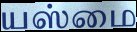
யஸ்மை